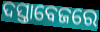
ଦସ୍ତାବେଜରେ